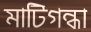
মাটিগন্ধা